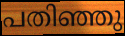
പതിഞ്ഞു